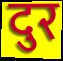
दुर